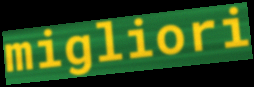
migliori